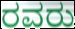
ರವರು